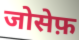
जोसेफ़